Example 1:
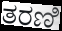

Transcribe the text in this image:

ತರಣಿ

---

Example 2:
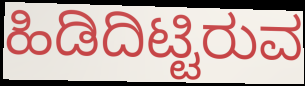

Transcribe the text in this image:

ಹಿಡಿದಿಟ್ಟಿರುವ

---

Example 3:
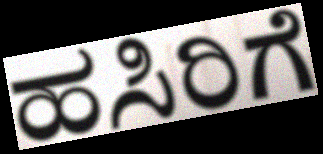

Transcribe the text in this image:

ಹಸಿರಿಗೆ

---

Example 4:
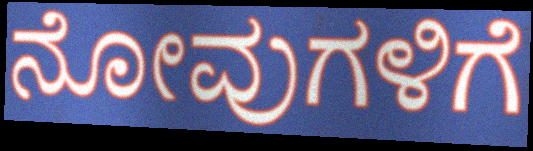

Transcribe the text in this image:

ನೋವುಗಳಿಗೆ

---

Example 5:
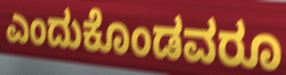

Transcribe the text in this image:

ಎಂದುಕೊಂಡವರೂ